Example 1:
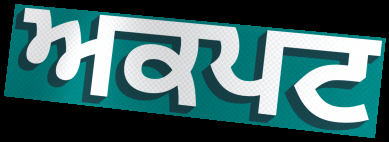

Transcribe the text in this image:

ਅਕਪਟ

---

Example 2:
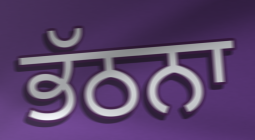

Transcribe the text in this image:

ਭੱਠਨਾ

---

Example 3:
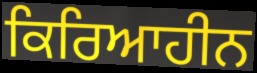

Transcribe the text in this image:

ਕਿਰਿਆਹੀਨ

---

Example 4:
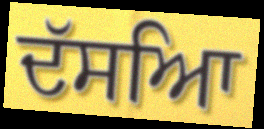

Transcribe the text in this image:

ਦੱਸਆਿ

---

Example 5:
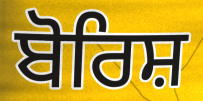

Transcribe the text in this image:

ਬੋਰਿਸ਼